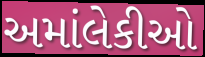
અમાંલેકીઓ